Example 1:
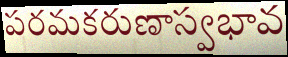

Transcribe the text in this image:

పరమకరుణాస్వభావ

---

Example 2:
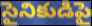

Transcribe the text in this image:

సైనికుడిపై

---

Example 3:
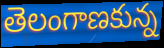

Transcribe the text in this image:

తెలంగాణకున్న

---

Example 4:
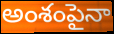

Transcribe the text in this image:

అంశంపైనా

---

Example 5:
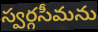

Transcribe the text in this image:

స్వర్గసీమను